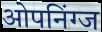
ओपनिंग्ज